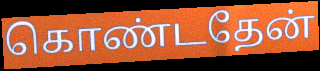
கொண்டதேன்